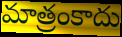
మాత్రంకాదు